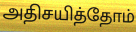
அதிசயித்தோம்